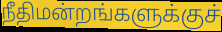
நீதிமன்றங்களுக்குச்